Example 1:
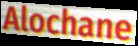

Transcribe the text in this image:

Alochane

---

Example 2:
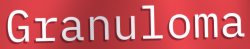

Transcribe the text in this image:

Granuloma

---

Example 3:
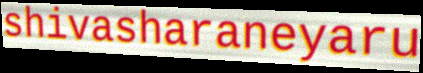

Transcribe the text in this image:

shivasharaneyaru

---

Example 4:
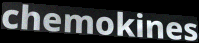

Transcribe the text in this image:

chemokines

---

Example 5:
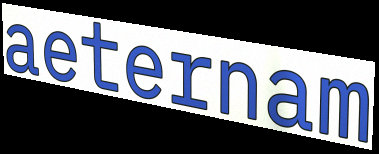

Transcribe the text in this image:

aeternam